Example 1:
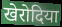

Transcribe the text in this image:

खेरोदिया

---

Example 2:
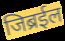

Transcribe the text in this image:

जिब्रईल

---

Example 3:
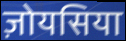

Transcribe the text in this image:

ज़ोयसिया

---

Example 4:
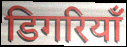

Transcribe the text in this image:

डिगरियाँ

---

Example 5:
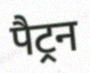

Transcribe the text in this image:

पैट्रन